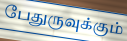
பேதுருவுக்கும்